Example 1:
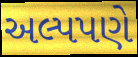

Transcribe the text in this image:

અલ્પપણે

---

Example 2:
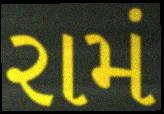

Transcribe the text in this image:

રામં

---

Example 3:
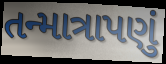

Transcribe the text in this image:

તન્માત્રાપણું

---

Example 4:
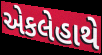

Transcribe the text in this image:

એકલેહાથે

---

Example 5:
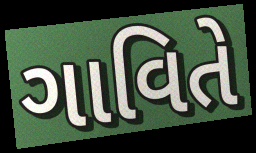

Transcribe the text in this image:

ગાવિતે